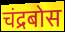
चंद्रबोस